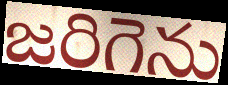
జరిగెను